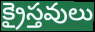
క్రైస్తవులు